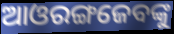
ଆଓରଙ୍ଗଜେବଙ୍କୁ